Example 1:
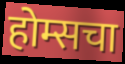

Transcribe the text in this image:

होम्सचा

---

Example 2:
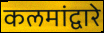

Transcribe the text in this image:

कलमांद्वारे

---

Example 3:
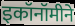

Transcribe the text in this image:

इकॉनॉमीने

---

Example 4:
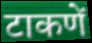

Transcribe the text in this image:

टाकणें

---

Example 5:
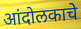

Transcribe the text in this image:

आंदोलकाचे